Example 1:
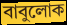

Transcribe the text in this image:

বাবুলোক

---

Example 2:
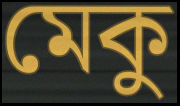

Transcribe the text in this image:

মেকু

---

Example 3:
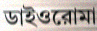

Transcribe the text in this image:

ডাইওরোমা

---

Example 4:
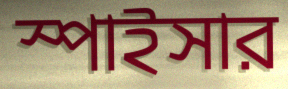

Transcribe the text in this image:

স্পাইসার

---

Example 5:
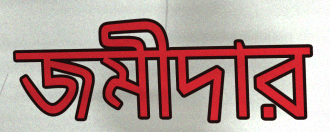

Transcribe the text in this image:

জমীদার